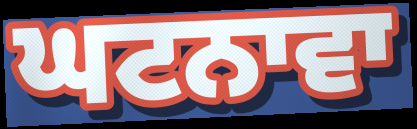
ਘਟਨਾਵਾ